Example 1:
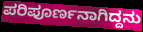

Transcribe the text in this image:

ಪರಿಪೂರ್ಣನಾಗಿದ್ದನು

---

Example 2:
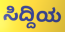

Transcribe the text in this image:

ಸಿದ್ದಿಯ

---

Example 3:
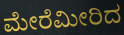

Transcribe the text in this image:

ಮೇರೆಮೀರಿದ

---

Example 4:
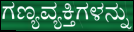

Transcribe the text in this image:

ಗಣ್ಯವ್ಯಕ್ತಿಗಳನ್ನು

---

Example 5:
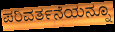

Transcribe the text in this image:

ಪರಿವರ್ತನೆಯನ್ನೂ